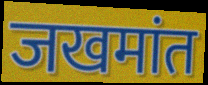
जखमांत